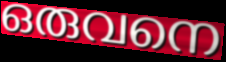
ഒരുവനെ